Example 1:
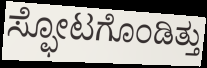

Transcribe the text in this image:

ಸ್ಫೋಟಗೊಂಡಿತ್ತು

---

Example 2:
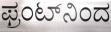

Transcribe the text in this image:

ಫ್ರಂಟ್‌ನಿಂದ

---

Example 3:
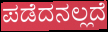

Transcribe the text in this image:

ಪಡೆದನಲ್ಲದೆ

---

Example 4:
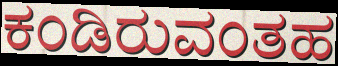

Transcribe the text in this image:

ಕಂಡಿರುವಂತಹ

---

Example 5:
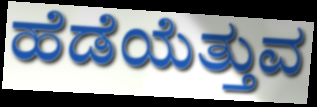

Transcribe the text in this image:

ಹೆಡೆಯೆತ್ತುವ